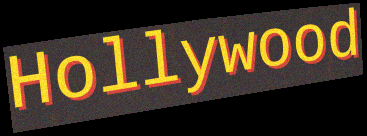
Hollywood